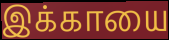
இக்காயை